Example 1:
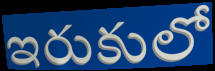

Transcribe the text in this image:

ఇరుకులో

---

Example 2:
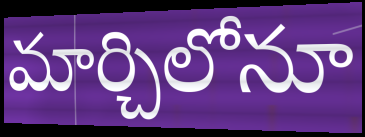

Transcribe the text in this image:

మార్చిలోనూ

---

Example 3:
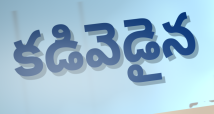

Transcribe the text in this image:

కడివెడైన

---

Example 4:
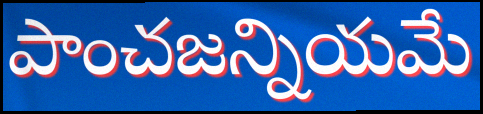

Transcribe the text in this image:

పాంచజన్నియమే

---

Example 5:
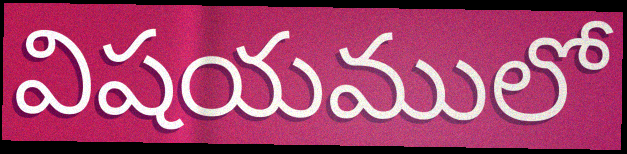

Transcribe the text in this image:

విషయములో